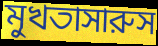
মুখতাসারুস